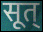
सूत्